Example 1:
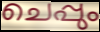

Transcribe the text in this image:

ചെപ്പും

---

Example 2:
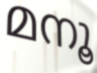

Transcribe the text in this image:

മനൂ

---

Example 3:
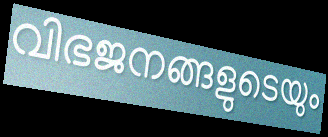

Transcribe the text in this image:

വിഭജനങ്ങളുടെയും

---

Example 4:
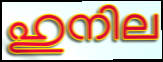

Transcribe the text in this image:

ഹുനില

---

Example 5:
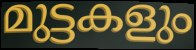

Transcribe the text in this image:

മുട്ടകളും